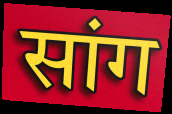
सांग